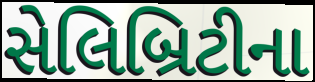
સેલિબ્રિટીના